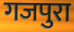
गजपुरा